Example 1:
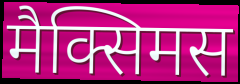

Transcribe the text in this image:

मैक्सिमस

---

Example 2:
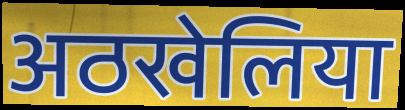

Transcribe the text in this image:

अठखेलिया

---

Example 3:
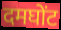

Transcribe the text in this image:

दमघोंट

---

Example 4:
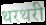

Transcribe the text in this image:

थरथरी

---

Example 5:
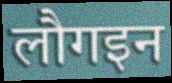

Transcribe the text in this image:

लौगइन